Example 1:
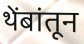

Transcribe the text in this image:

थेंबांतून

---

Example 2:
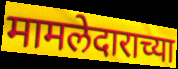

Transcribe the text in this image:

मामलेदाराच्या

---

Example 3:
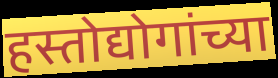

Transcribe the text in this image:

हस्तोद्योगांच्या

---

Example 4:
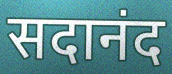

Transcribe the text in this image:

सदानंद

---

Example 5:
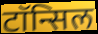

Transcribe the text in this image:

टॉन्सिल